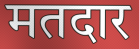
मतदार